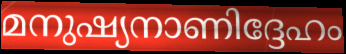
മനുഷ്യനാണിദ്ദേഹം